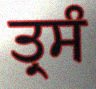
ਤ੍ਰਸੰ